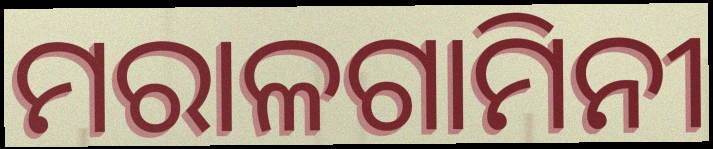
ମରାଳଗାମିନୀ